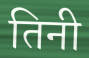
तिनी